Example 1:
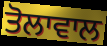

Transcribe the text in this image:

ਤੋਲਾਵਾਲ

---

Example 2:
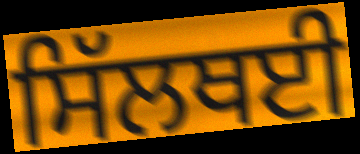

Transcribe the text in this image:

ਸਿੱਲਥਈ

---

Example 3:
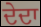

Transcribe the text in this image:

ਦੇਦਾ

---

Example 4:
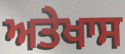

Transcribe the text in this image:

ਅਤੇਖਾਸ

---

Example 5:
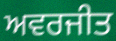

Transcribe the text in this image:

ਅਵਰਜੀਤ